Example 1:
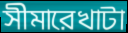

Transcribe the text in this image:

সীমারেখাটা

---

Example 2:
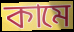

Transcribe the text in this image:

কামে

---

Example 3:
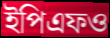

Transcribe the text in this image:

ইপিএফও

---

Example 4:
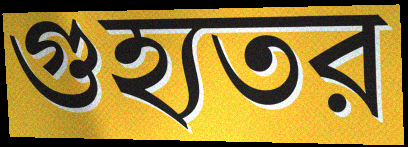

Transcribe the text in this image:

গুহ্যতর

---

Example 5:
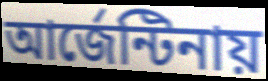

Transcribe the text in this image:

আর্জেন্টিনায়